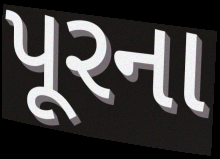
પૂરના